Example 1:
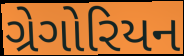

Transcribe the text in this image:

ગ્રેગોરિયન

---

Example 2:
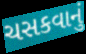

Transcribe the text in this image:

ચસકવાનું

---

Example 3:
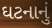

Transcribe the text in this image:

ઘટનાનું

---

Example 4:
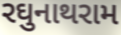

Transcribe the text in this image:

રઘુનાથરામ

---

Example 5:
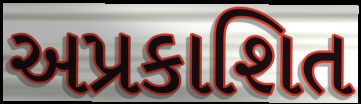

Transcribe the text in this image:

અપ્રકાશિત